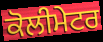
ਕੋਲੀਮੇਟਰ